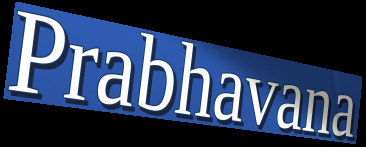
Prabhavana